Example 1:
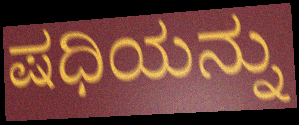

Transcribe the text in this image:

ಷಧಿಯನ್ನು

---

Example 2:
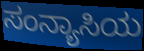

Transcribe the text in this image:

ಸಂನ್ಯಾಸಿಯ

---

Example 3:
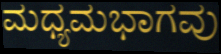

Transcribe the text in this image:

ಮಧ್ಯಮಭಾಗವು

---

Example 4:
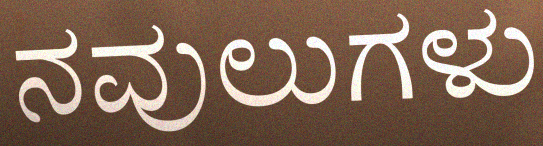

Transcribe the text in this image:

ನವುಲುಗಳು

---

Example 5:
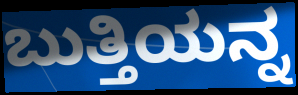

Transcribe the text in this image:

ಬುತ್ತಿಯನ್ನ